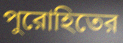
পুরোহিতের